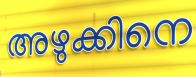
അഴുക്കിനെ